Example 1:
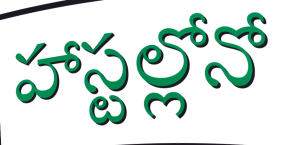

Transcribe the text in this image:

హాస్టల్లోనో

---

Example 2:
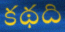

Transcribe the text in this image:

కథది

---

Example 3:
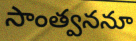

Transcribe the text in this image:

సాంత్వననూ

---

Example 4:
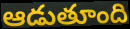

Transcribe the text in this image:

ఆడుతూంది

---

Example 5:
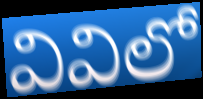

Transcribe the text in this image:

వివిలో